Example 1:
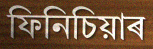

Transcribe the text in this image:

ফিনিচিয়াৰ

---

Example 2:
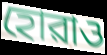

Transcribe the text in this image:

হোৱাও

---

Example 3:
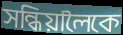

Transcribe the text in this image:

সন্ধিয়ালৈকে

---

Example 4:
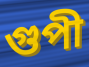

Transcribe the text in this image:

গুপী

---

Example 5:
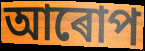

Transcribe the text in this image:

আৰোপ